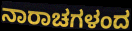
ನಾರಾಚಗಳಂದ